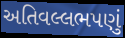
અતિવલ્લભપણું